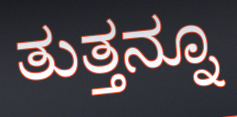
ತುತ್ತನ್ನೂ